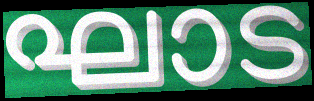
ഘാട